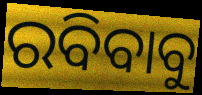
ରବିବାବୁ